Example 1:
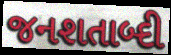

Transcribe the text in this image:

જનશતાબ્દી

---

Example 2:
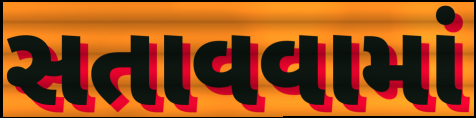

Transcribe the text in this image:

સતાવવામાં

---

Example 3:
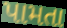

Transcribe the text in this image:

પામતા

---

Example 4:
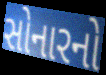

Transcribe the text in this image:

સોનારનો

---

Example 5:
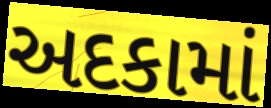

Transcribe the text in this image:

અદકામાં